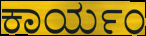
ಕಾರ್ಯಂ